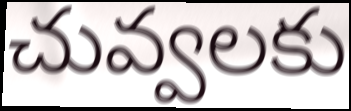
చువ్వలకు